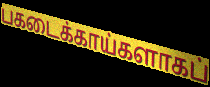
பகடைக்காய்களாகப்